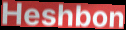
Heshbon